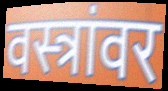
वस्त्रांवर